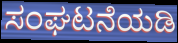
ಸಂಘಟನೆಯಡಿ